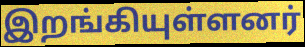
இறங்கியுள்ளனர்